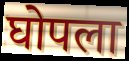
घोपला